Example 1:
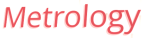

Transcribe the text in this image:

Metrology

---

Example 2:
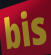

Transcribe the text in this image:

bis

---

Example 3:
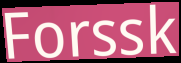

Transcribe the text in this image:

Forssk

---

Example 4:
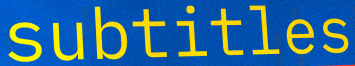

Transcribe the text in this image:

subtitles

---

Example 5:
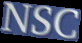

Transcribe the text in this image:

NSC